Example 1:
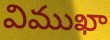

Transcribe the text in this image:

విముఖా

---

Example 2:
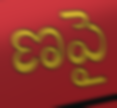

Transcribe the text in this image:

ణపై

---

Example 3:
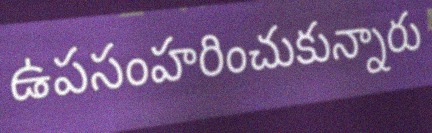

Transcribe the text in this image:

ఉపసంహరించుకున్నారు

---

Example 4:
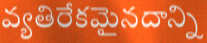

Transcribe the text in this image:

వ్యతిరేకమైనదాన్ని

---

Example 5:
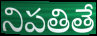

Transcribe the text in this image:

నిపతితే